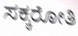
ಸಕ್ಕರೋತಿ